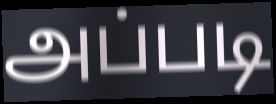
அப்படி